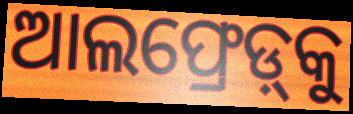
ଆଲଫ୍ରେଡ଼୍‍କୁ